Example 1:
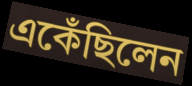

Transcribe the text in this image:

একেঁছিলেন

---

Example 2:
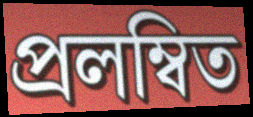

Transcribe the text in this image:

প্রলম্বিত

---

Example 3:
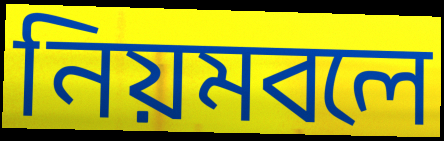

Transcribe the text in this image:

নিয়মবলে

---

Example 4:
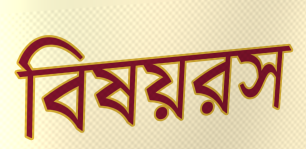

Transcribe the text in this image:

বিষয়রস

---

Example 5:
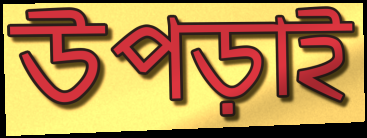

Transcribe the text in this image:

উপড়াই